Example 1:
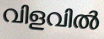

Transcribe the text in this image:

വിളവിൽ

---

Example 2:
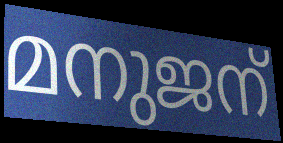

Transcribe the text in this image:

മനുജന്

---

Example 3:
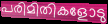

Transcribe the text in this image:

പരിമിതികളോടു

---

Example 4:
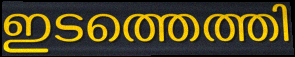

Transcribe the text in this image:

ഇടത്തെത്തി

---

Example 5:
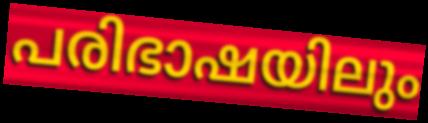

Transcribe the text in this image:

പരിഭാഷയിലും